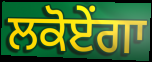
ਲਕੋਏਂਗਾ